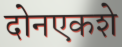
दोनएकशे